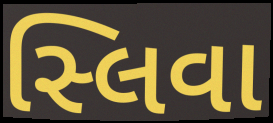
સ્લિવા